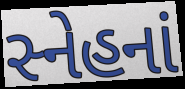
સ્નેહનાં